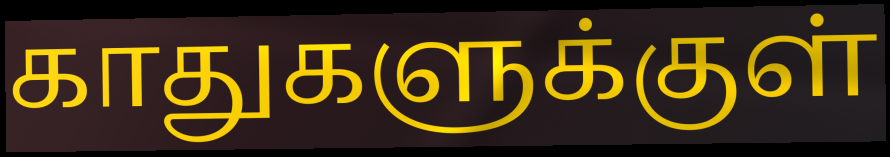
காதுகளுக்குள்